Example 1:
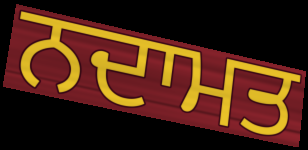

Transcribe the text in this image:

ਨਦਾਮਤ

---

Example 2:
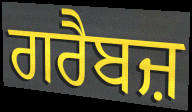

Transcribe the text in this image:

ਗਰੈਬਜ਼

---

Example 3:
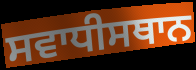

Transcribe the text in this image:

ਸਵਾਧੀਸਥਾਨ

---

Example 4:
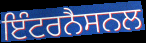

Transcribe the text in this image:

ਇੰਟਰਨੈਸਨਲ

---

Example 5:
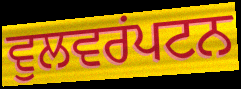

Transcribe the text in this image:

ਵੁਲਵਰਂਪਟਨ